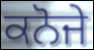
ਕਨੋਜੇ